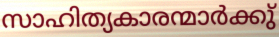
സാഹിത്യകാരന്മാർക്കു്